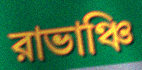
রাভাঞ্চি